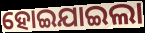
ହୋଇଯାଇଲା